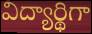
విద్యార్థిగా